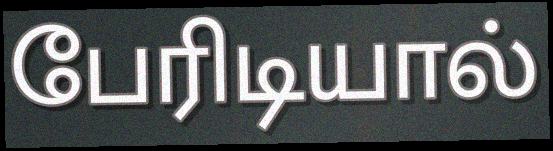
பேரிடியால்